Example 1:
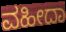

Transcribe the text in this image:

ವಹೀದಾ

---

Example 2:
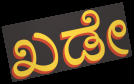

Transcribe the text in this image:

ಖಡೇ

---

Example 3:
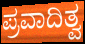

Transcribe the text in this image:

ಪ್ರವಾದಿತ್ವ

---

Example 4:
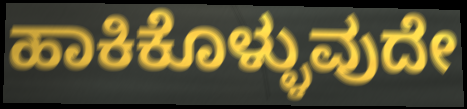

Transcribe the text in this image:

ಹಾಕಿಕೊಳ್ಳುವುದೇ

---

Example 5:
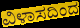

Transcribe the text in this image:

ವಿಳಾಸದಿಂದ